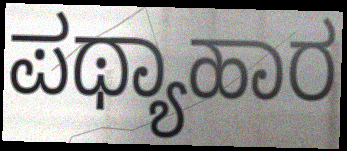
ಪಥ್ಯಾಹಾರ